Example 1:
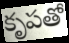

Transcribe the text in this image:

కృపతో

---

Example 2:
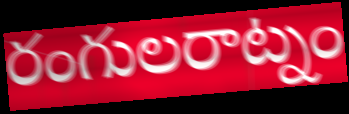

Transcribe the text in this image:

రంగులరాట్నం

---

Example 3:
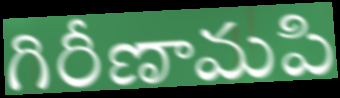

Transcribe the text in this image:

గిరీణామపి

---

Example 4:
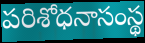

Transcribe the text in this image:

పరిశోధనాసంస్థ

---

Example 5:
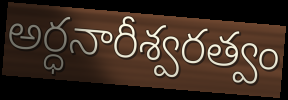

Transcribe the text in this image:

అర్ధనారీశ్వరత్వం